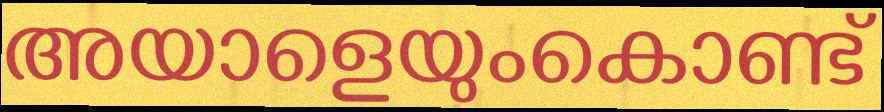
അയാളെയുംകൊണ്ട്